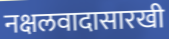
नक्षलवादासारखी